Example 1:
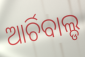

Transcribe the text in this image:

ଆର୍ଚିବାଲ୍ଡ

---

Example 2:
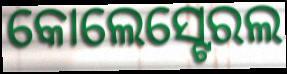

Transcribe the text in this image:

କୋଲେସ୍ଟେରଲ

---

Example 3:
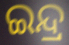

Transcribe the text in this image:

ଇନ୍ଦ୍ର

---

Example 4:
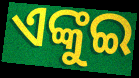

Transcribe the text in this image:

ଏଙ୍କୁଇ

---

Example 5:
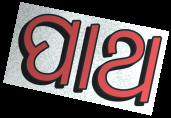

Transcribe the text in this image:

ପାଥ